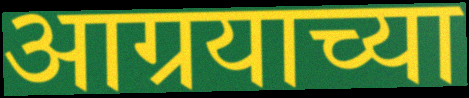
आग्रयाच्या